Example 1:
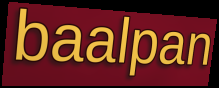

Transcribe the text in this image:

baalpan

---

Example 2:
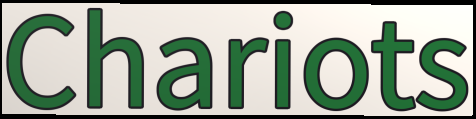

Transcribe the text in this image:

Chariots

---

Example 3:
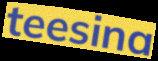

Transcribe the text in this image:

teesina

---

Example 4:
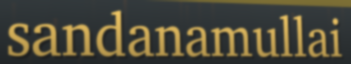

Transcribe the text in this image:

sandanamullai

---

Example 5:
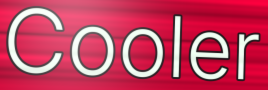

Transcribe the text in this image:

Cooler